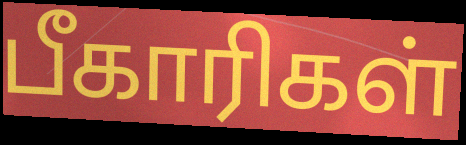
பீகாரிகள்